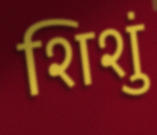
शिशुं